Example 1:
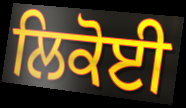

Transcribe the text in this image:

ਲਿਕੋਈ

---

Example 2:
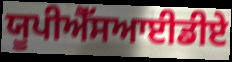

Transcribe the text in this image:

ਯੂਪੀਐੱਸਆਈਡੀਏ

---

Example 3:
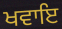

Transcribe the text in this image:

ਖਵਾਇ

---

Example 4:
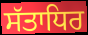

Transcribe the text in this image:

ਸੱਤਾਧਿਰ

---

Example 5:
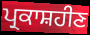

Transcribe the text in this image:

ਪ੍ਰਕਾਸ਼ਹੀਣ